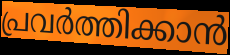
പ്രവർത്തിക്കാൻ